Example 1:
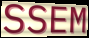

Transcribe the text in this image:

SSEM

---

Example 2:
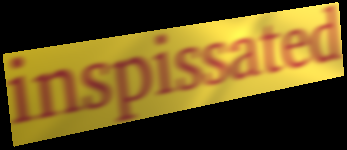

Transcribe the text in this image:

inspissated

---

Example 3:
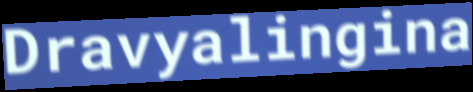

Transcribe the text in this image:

Dravyalingina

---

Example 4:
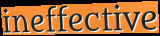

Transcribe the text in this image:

ineffective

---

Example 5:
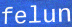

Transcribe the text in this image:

felun